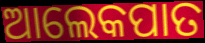
ଆଲେକପାତ